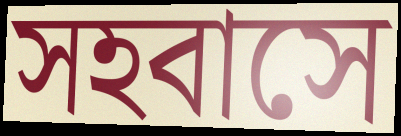
সহবাসে